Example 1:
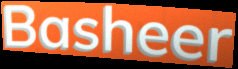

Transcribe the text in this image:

Basheer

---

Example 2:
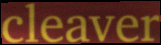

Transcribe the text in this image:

cleaver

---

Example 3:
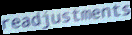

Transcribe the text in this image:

readjustments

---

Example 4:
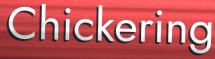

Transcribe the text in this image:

Chickering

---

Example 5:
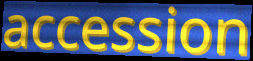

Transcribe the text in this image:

accession